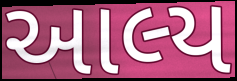
આલ્ય